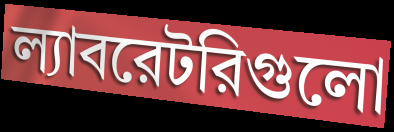
ল্যাবরেটরিগুলো